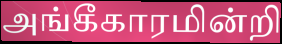
அங்கீகாரமின்றி